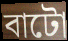
বাটো